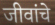
जीवांचे